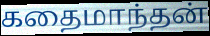
கதைமாந்தன்